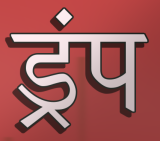
ड्रंप